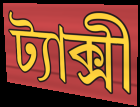
ট্যাক্সী